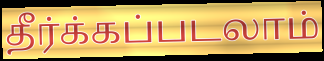
தீர்க்கப்படலாம்